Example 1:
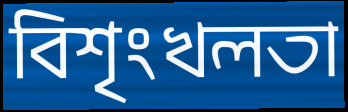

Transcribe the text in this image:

বিশৃংখলতা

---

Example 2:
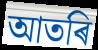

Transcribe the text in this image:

আতৰি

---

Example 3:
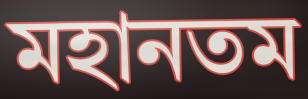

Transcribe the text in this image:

মহানতম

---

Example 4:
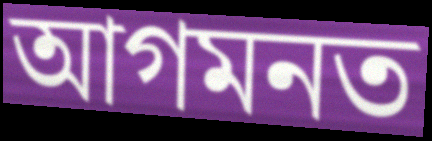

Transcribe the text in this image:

আগমনত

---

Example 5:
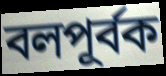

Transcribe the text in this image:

বলপূৰ্বক